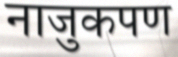
नाजुकपण